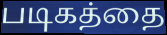
படிகத்தை